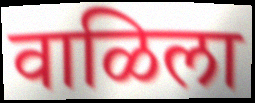
वाळिला